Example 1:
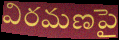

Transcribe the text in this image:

విరమణపై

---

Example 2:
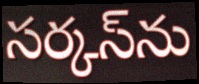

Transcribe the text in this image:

సర్కస్‌ను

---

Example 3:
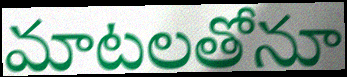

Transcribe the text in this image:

మాటలతోనూ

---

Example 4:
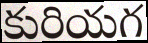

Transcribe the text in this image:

కురియగ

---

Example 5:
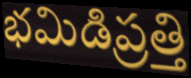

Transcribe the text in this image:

భమిడిప్రత్తి